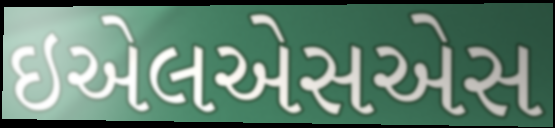
ઇએલએસએસ